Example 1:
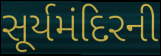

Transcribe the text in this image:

સૂર્યમંદિરની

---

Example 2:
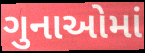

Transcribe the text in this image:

ગુનાઓમાં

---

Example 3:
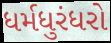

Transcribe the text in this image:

ધર્મધુરંધરો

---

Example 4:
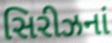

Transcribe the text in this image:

સિરીઝનાં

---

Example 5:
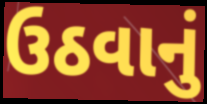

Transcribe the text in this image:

ઉઠવાનું